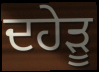
ਦਹੇੜੂ